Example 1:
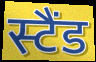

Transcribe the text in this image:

स्टैंड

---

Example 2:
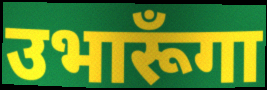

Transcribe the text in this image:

उभारूँगा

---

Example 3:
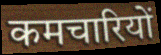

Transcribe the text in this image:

कमचारियों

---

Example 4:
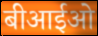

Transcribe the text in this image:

बीआईओ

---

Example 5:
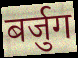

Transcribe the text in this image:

बर्जुग